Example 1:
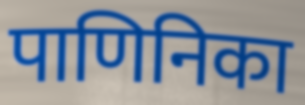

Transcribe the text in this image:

पाणिनिका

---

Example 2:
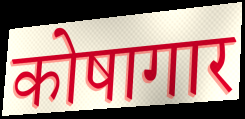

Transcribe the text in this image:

कोषागार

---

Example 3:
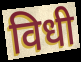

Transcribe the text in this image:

विधी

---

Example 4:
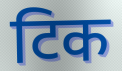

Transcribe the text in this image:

टिक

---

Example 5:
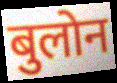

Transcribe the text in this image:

बुलोन